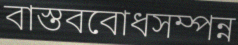
বাস্তববোধসম্পন্ন